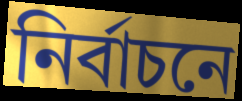
নির্বাচনে